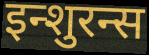
इन्शुरन्स